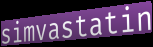
simvastatin